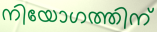
നിയോഗത്തിന്